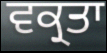
ਵਕ੍ਰਤਾ